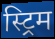
स्ट्रिम